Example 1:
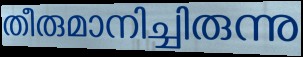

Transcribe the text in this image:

തീരുമാനിച്ചിരുന്നു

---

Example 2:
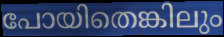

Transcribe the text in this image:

പോയിതെങ്കിലും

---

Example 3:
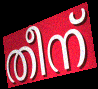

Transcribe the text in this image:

തീന്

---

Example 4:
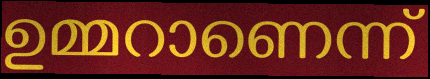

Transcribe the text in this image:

ഉമ്മറാണെന്ന്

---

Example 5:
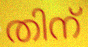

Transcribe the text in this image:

തിന്